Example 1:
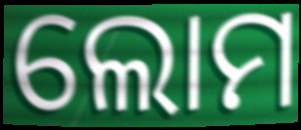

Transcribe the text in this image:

ଲୋମ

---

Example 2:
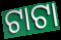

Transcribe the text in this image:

ଟାଟା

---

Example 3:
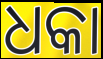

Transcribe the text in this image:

ଧକା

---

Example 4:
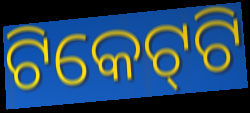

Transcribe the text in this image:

ଟିକେଟ୍‌ଟି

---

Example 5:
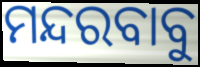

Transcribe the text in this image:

ମନ୍ଦରବାବୁ